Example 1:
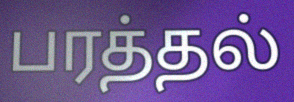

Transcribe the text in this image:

பரத்தல்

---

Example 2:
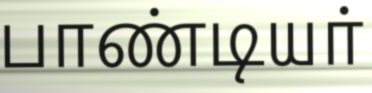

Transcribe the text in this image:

பாண்டியர்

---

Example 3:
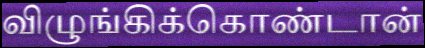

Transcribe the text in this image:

விழுங்கிக்கொண்டான்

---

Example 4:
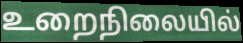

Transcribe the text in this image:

உறைநிலையில்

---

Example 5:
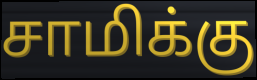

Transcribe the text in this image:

சாமிக்கு